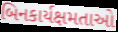
બિનકાર્યક્ષમતાઓ